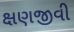
ક્ષણજીવી